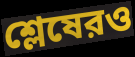
শ্লেষেরও